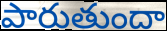
పారుతుందా